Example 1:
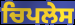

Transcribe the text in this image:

ਚਿਪਲੇਸ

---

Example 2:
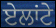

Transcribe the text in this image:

ਏਲਾਂਟੇ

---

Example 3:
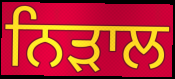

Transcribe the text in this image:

ਨਿੜਾਲ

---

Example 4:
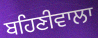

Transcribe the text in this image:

ਬਹਿਣੀਵਾਲਾ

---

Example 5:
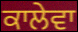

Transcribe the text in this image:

ਕਾਲੇਵਾ